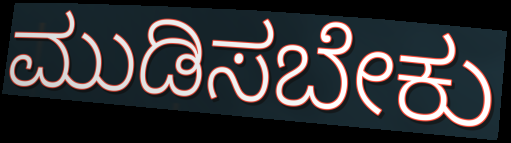
ಮುಡಿಸಬೇಕು